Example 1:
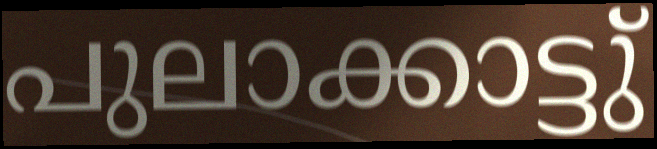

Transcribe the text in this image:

പുലാക്കാട്ടു്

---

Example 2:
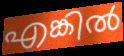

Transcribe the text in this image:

എങ്കിൽ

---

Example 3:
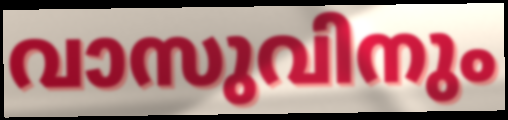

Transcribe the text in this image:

വാസുവിനും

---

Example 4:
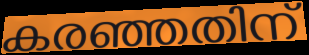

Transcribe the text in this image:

കരഞ്ഞതിന്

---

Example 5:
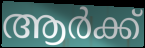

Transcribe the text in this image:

ആർക്ക്